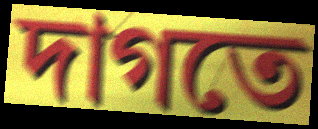
দাগতে